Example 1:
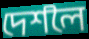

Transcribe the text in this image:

দেশলৈ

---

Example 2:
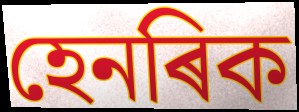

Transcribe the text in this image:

হেনৰিক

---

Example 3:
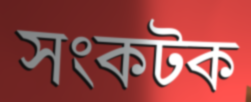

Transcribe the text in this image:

সংকটক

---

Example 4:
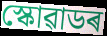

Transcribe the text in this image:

স্কোৱাডৰ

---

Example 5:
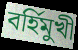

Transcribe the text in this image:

বৰ্হিমুখী